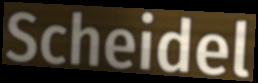
Scheidel